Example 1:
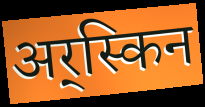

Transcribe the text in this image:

अर्स्किन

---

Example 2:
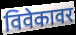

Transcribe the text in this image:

विवेकावर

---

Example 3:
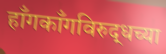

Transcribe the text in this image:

हाँगकाँगविरुद्धच्या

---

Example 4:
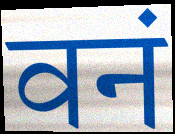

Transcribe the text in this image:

वनं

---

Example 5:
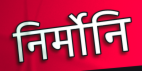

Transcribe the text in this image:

निर्मोनि